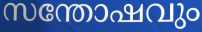
സന്തോഷവും